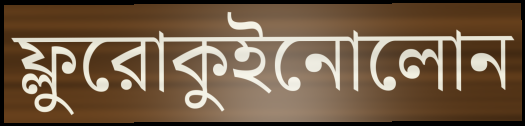
ফ্লুরোকুইনোলোন